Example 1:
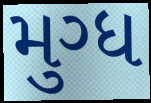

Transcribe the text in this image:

મુગ્ધ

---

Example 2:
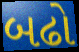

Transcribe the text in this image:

બઢો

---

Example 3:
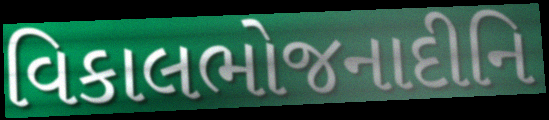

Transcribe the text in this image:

વિકાલભોજનાદીનિ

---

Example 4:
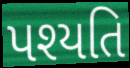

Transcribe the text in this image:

પશ્યતિ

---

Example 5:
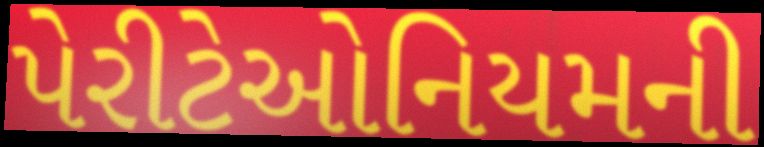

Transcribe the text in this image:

પેરીટેઓનિયમની